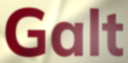
Galt